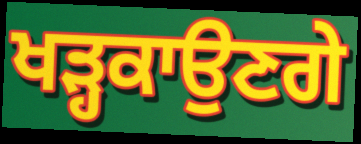
ਖੜ੍ਹਕਾਉਣਗੇ